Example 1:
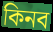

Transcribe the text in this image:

কিনব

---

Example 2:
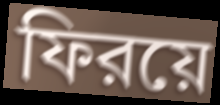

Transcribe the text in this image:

ফিরয়ে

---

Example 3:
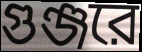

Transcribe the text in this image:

গুঞ্জরে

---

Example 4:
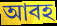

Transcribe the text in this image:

আবহ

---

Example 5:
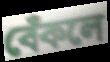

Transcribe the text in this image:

বেঁকলে